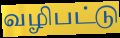
வழிபட்டு